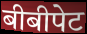
बीबीपेट